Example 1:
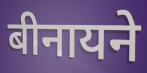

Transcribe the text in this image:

बीनायने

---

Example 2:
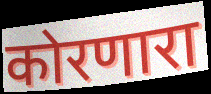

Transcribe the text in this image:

कोरणारा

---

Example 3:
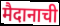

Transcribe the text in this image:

मैदानाची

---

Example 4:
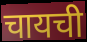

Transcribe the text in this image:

चायची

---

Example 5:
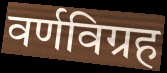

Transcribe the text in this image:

वर्णविग्रह